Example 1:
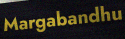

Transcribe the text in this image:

Margabandhu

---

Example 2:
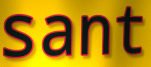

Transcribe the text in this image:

sant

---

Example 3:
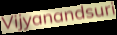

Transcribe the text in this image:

Vijyanandsuri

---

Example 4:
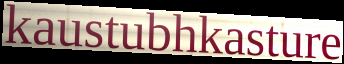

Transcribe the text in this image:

kaustubhkasture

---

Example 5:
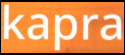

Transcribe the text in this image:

kapra